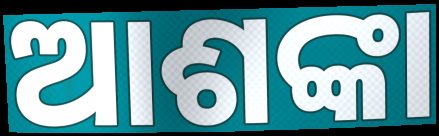
ଆଶଙ୍କା